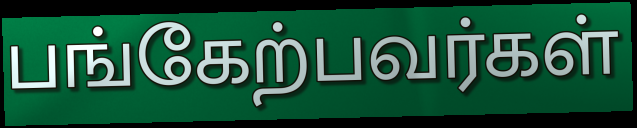
பங்கேற்பவர்கள்